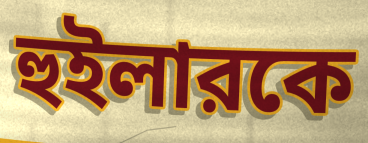
হুইলারকে